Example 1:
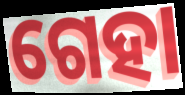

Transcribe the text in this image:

ଗେହା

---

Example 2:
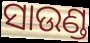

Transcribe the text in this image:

ସାଉଣ୍ଡ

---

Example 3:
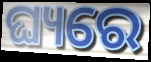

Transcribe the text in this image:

ଘ୍ୟରେ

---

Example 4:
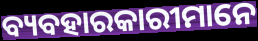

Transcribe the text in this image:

ବ୍ୟବହାରକାରୀମାନେ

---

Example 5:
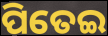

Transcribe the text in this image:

ପିତେଇ